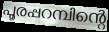
പൂരപ്പറമ്പിന്റെ